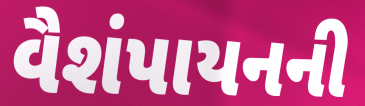
વૈશંપાયનની